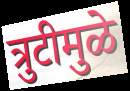
त्रुटीमुळे